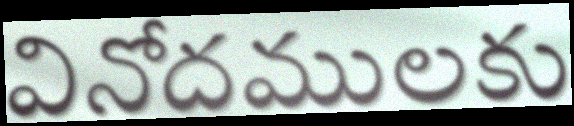
వినోదములకు